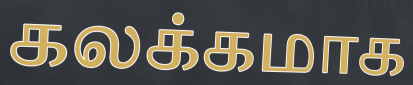
கலக்கமாக